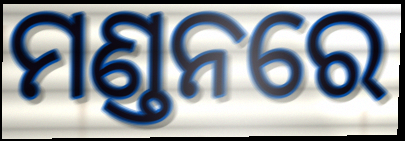
ମଣ୍ଡନରେ